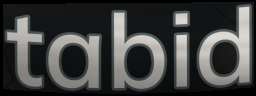
tabid